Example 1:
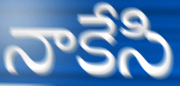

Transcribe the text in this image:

నాకేసి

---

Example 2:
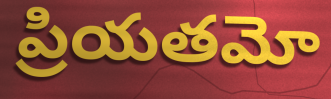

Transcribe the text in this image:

ప్రియతమో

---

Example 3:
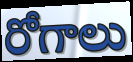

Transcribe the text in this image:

రోగాలు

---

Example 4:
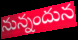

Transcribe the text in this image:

నున్నందున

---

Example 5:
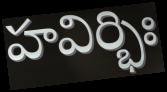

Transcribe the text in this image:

హవిర్భిః